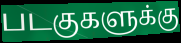
படகுகளுக்கு